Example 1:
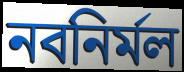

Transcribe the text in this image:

নবনির্মল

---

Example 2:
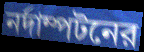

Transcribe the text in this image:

নর্দাম্পটনের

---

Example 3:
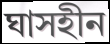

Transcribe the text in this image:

ঘাসহীন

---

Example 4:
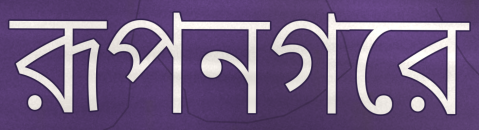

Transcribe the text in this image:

রূপনগরে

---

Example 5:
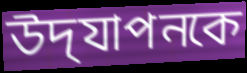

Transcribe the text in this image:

উদ্‌যাপনকে